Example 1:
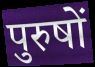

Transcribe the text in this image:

पुरुषों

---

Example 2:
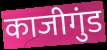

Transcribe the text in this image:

काजीगुंड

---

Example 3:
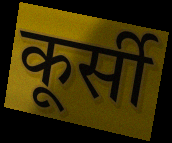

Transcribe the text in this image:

कूर्सी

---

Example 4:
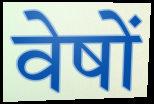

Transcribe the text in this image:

वेषों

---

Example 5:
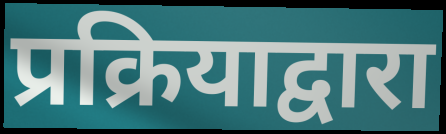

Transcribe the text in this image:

प्रक्रियाद्वारा